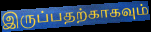
இருப்பதற்காகவும்